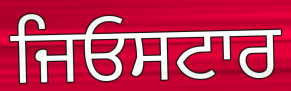
ਜਿਓਸਟਾਰ